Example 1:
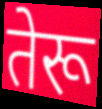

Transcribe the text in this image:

तेरू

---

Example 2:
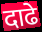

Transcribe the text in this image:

दाढे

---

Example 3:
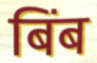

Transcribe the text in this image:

बिंब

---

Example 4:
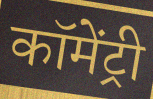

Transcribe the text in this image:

कॉमेंट्री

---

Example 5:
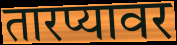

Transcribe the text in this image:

तारप्यावर